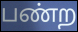
பண்ற